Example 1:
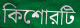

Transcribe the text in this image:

কিশোরটি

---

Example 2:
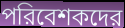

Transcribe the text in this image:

পরিবেশকদের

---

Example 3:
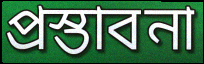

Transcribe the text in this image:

প্রস্তাবনা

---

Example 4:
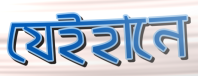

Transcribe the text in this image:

যেইহানে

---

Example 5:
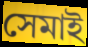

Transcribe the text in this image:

সেমাই